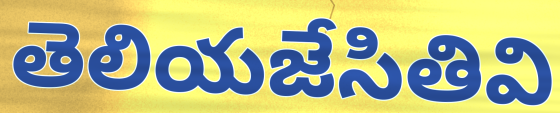
తెలియజేసితివి